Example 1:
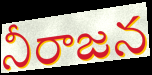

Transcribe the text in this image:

నీరాజన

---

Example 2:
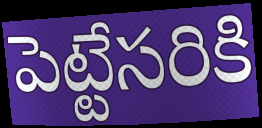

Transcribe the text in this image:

పెట్టేసరికి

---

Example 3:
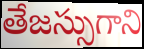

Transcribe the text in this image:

తేజస్సుగాని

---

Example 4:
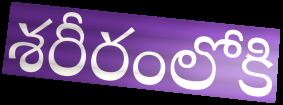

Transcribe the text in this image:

శరీరంలోకి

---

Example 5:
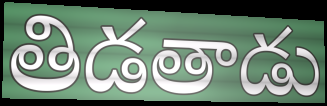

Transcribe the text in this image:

తిడతాడు